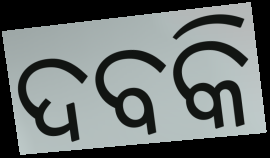
ଦବକି